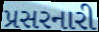
પ્રસરનારી